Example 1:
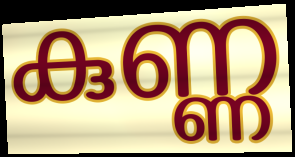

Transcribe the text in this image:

കുണ്ണ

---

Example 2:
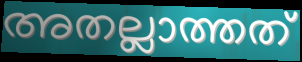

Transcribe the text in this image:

അതല്ലാത്തത്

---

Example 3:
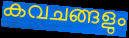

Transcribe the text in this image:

കവചങ്ങളും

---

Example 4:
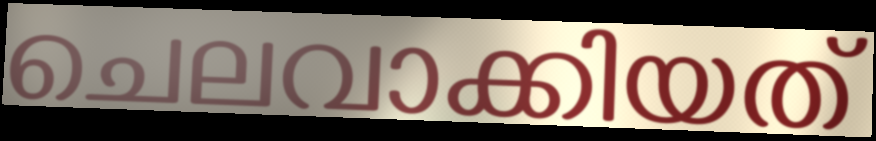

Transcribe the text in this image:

ചെലവാക്കിയത്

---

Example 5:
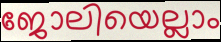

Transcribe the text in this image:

ജോലിയെല്ലാം